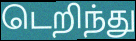
டெறிந்து